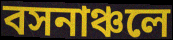
বসনাঞ্চলে